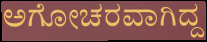
ಅಗೋಚರವಾಗಿದ್ದ